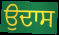
ਉਦਾਸ